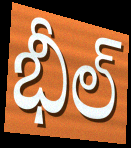
భీల్